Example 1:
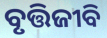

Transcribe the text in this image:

ବୃତ୍ତିଜୀବି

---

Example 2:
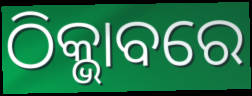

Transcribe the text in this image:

ଠିକ୍ଭାବରେ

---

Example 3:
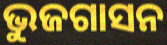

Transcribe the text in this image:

ଭୁଜଗାସନ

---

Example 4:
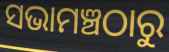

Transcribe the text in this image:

ସଭାମଞ୍ଚଠାରୁ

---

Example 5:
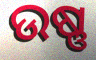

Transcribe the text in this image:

ଉଷ୍ଣ